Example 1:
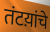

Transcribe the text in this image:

तंटय़ांचे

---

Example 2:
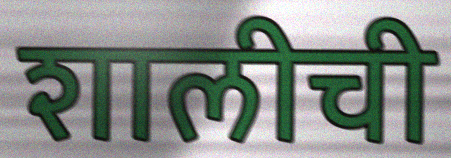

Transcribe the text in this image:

शालीची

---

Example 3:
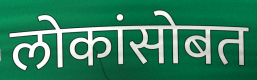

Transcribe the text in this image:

लोकांसोबत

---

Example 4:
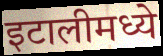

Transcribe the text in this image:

इटालीमध्ये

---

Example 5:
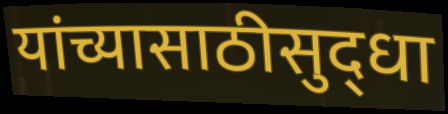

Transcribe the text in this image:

यांच्यासाठीसुद्धा